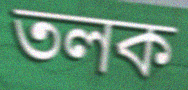
তলক